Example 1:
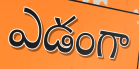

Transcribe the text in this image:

ఎడంగా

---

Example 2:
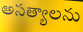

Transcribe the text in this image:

అసత్యాలను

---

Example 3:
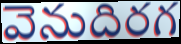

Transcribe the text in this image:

వెనుదిరగ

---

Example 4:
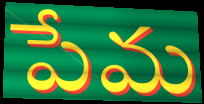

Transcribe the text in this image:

పేమ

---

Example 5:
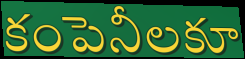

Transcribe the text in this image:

కంపెనీలకూ